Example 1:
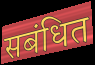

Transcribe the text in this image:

सबंधित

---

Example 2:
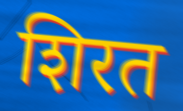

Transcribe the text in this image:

शिरत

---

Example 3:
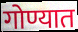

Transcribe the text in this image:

गोण्यात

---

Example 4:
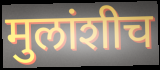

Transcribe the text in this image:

मुलांशीच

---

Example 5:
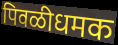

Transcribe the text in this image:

पिवळीधमक